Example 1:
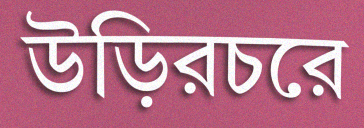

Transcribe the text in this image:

উড়িরচরে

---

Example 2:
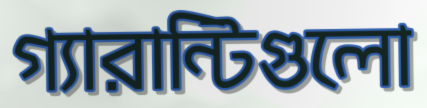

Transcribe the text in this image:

গ্যারান্টিগুলো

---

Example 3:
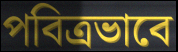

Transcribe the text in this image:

পবিত্রভাবে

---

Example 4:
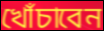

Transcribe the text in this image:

খোঁচাবেন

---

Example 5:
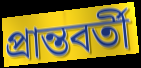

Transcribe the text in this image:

প্রান্তবর্তী